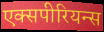
एक्सपीरियन्स